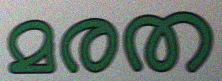
മരത